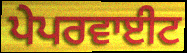
ਪੇਪਰਵਾਈਟ